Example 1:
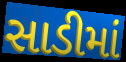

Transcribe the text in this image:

સાડીમાં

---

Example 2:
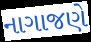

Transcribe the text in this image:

નાગાજણે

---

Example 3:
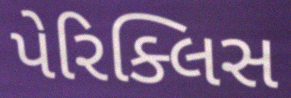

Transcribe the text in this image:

પેરિક્લિસ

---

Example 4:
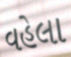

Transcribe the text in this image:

વહેલા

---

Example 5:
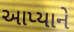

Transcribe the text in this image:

આપ્યાને